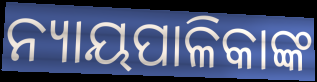
ନ୍ୟାୟପାଳିକାଙ୍କ